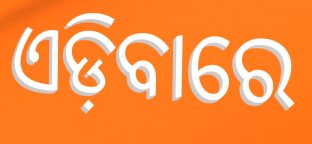
ଏଡ଼ିବାରେ